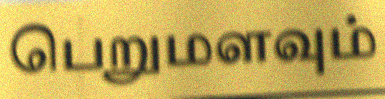
பெறுமளவும்